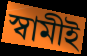
স্বামীই